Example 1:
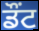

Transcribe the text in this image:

ਡੌਂਟ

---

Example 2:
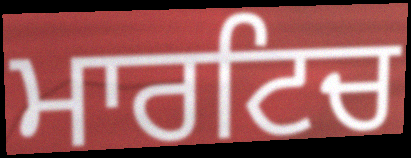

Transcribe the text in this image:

ਮਾਰਟਿਚ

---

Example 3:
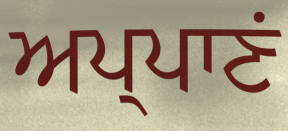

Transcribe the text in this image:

ਅਪ੍ਪਾਣਂ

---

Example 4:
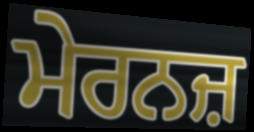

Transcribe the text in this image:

ਮੇਰਨਜ਼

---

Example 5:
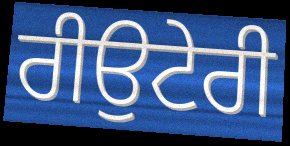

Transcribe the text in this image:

ਰੀਉਟੇਰੀ